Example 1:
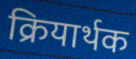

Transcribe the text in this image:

क्रियार्थक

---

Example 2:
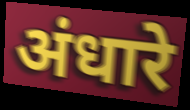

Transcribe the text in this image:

अंधारे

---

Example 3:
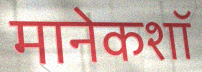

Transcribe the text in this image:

मानेकशॉ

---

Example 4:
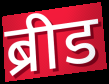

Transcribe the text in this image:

ब्रीड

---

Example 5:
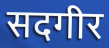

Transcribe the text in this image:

सदगीर